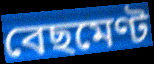
বেছমেণ্ট